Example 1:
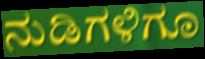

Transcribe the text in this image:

ನುಡಿಗಳಿಗೂ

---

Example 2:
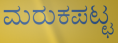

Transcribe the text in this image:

ಮರುಕಪಟ್ಟ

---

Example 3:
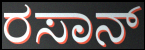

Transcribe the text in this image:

ರಸಾನ್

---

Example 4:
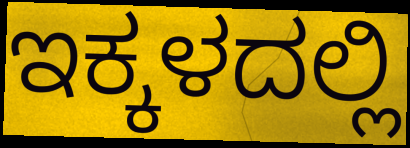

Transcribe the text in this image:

ಇಕ್ಕಳದಲ್ಲಿ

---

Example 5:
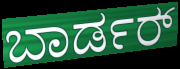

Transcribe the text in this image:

ಬಾರ್ಡರ್‍